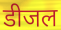
डीजल